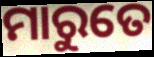
ମାରୁତେ